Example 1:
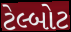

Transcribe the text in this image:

ટેલ્બોટ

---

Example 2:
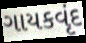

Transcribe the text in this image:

ગાયકવૃંદ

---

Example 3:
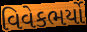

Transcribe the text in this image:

વિવેકભર્યો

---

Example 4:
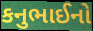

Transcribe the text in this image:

કનુભાઈનો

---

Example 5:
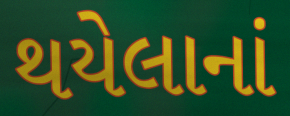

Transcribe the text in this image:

થયેલાનાં